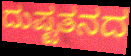
ದುಷ್ಟತನದ